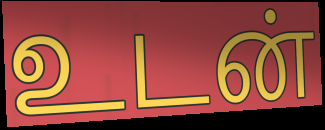
உடன்